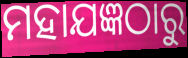
ମହାଯଜ୍ଞଠାରୁ